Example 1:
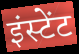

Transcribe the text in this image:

इंस्टेंट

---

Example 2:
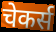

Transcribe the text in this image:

चेकर्स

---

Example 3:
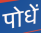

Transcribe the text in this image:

पोधें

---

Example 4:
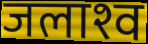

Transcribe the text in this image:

जलाश्व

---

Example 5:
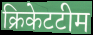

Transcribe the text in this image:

क्रिकेटटीम